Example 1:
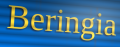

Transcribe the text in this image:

Beringia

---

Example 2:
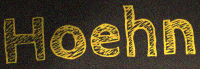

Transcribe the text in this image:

Hoehn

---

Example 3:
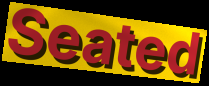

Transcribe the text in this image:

Seated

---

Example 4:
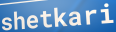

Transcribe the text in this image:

shetkari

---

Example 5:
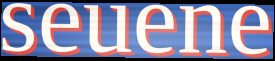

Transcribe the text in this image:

seuene